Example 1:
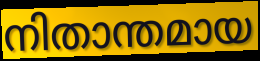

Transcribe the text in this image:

നിതാന്തമായ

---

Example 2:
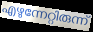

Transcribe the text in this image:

എഴുന്നേറ്റിരുന്ന്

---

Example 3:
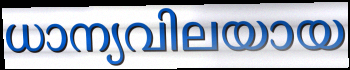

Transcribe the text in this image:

ധാന്യവിലയായ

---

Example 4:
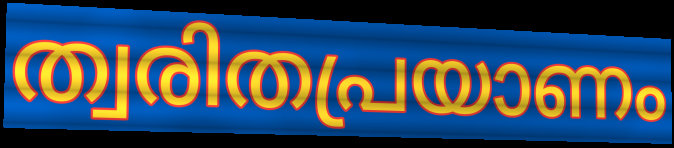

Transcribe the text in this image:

ത്വരിതപ്രയാണം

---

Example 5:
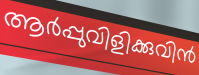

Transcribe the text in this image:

ആർപ്പുവിളിക്കുവിൻ